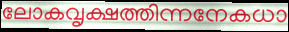
ലോകവൃക്ഷത്തിന്നനേകധാ